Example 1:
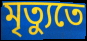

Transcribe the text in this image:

মৃত্যুতে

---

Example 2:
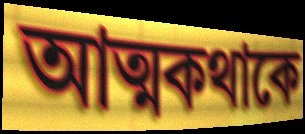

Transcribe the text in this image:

আত্মকথাকে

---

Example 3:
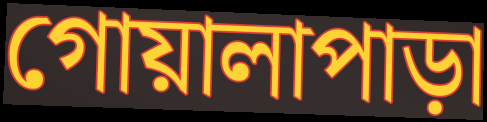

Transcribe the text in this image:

গোয়ালাপাড়া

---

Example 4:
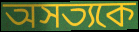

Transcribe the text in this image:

অসত্যকে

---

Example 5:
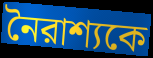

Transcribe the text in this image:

নৈরাশ্যকে